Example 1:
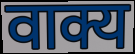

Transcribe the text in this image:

वाक्य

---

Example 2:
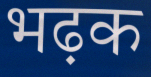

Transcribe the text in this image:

भढ़क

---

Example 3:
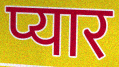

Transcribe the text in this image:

प्‍यार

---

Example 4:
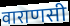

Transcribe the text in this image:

वाराणसी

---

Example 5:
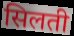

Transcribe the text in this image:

सिलती